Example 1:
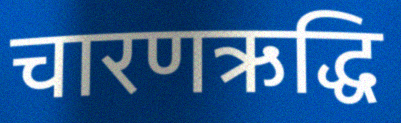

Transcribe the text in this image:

चारणऋद्धि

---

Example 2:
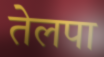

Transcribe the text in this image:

तेलपा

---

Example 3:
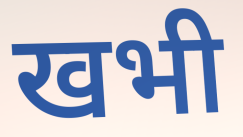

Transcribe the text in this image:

खभी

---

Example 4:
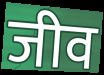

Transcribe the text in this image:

जीव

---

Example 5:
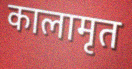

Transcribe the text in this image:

कालामृत